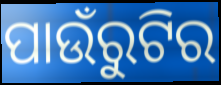
ପାଉଁରୁଟିର